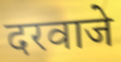
दरवाजे